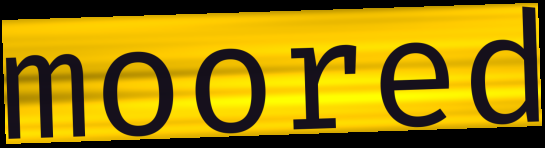
moored